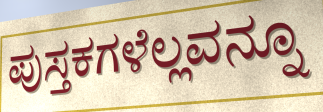
ಪುಸ್ತಕಗಳೆಲ್ಲವನ್ನೂ